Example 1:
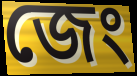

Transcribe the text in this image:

জেং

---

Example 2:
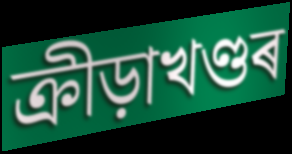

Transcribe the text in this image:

ক্ৰীড়াখণ্ডৰ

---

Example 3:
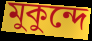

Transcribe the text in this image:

মুকুন্দে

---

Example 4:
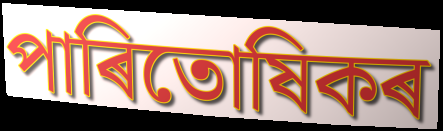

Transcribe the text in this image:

পাৰিতোষিকৰ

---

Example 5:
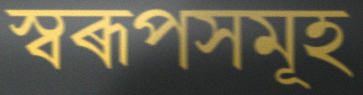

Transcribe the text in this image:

স্বৰূপসমূহ